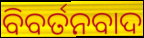
ବିବର୍ତନବାଦ